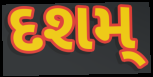
દશમ્